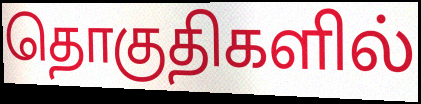
தொகுதிகளில்